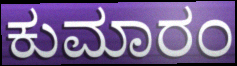
ಕುಮಾರಂ